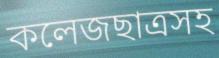
কলেজছাত্রসহ